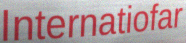
Internatiofar